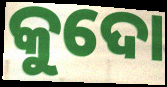
କୁଦୋ